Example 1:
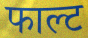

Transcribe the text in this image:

फाल्ट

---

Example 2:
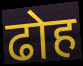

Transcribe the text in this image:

ढोह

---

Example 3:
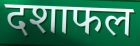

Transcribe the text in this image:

दशाफल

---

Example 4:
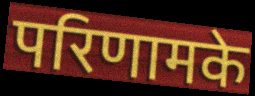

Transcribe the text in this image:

परिणामके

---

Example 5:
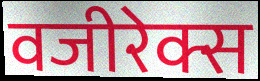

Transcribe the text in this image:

वजीरेक्स